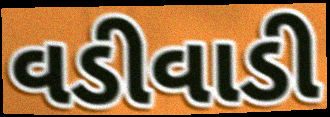
વડીવાડી